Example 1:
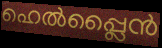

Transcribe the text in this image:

ഹെൽപ്പ്ലൈൻ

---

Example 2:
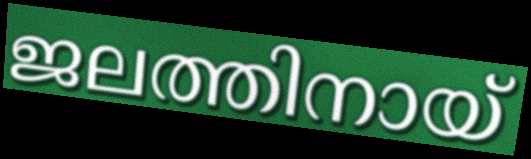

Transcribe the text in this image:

ജലത്തിനായ്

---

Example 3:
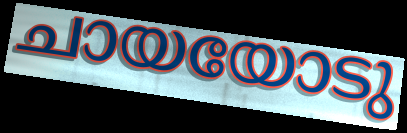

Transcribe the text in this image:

ചായയോടു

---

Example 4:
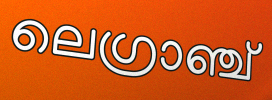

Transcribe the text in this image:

ലെഗ്രാഞ്ച്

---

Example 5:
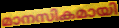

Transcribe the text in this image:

മാനസികമായി